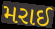
મરાઈ